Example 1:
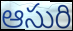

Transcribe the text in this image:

ఆసురి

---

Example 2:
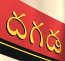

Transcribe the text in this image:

దగడ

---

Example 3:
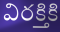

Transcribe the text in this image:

విరక్తికి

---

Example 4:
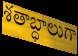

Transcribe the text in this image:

శతాబ్ధాలుగా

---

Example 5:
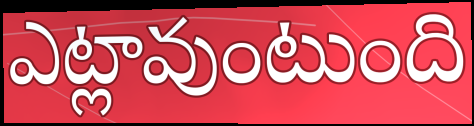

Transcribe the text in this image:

ఎట్లావుంటుంది